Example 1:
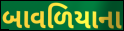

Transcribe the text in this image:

બાવળિયાના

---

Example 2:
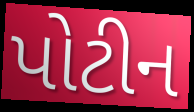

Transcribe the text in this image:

પોટીન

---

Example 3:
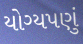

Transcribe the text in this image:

યોગ્યપણું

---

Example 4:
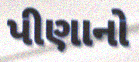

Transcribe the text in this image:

પીણાનો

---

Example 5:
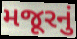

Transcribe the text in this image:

મજૂરનું